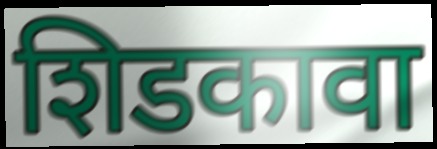
शिडकावा